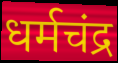
धर्मचंद्र